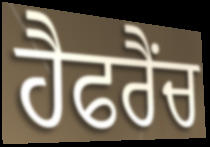
ਹੈਫਰੈਂਚ